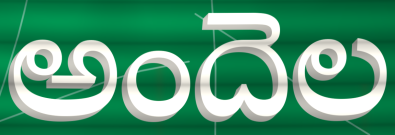
అందెల